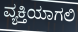
ವ್ಯಕ್ತಿಯಾಗಲಿ